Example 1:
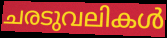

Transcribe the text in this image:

ചരടുവലികൾ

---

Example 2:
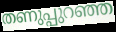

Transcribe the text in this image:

തണുപ്പുറഞ്ഞ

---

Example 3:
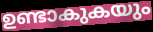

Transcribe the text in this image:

ഉണ്ടാകുകയും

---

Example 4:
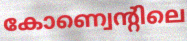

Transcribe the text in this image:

കോണ്വെന്റിലെ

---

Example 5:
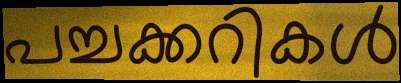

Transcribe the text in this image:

പച്ചക്കറികൾ